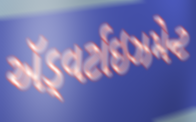
ઍડ્વર્ટાઇઝમેન્ટ